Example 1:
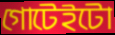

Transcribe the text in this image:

গোটেইটো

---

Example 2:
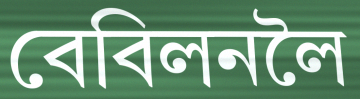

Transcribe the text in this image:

বেবিলনলৈ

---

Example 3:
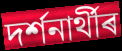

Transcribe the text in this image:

দৰ্শনাৰ্থীৰ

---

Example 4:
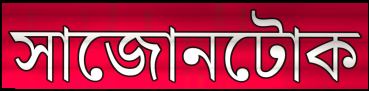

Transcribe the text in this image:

সাজোনটোক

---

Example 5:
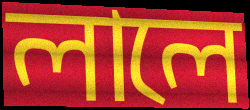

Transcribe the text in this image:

লালে